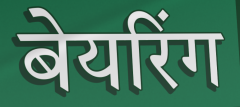
बेयरिंग